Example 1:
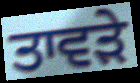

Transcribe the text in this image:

ਤਾਵੜੇ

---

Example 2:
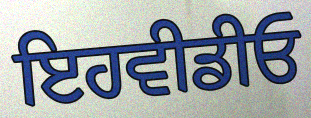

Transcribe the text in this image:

ਇਹਵੀਡੀਓ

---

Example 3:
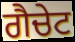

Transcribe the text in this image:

ਗੈਚੇਟ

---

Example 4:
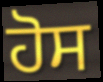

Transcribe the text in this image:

ਹੋਸ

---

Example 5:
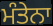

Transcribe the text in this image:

ਮੰਤੇਨਾ